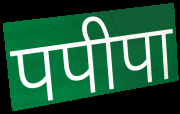
पपीपा